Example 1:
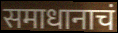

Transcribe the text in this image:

समाधानाचं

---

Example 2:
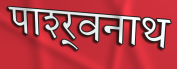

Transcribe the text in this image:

पाश्र्वनाथ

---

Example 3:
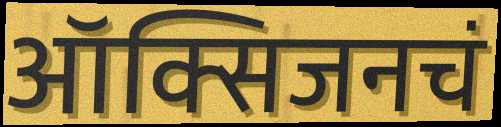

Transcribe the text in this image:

ऑक्सिजनचं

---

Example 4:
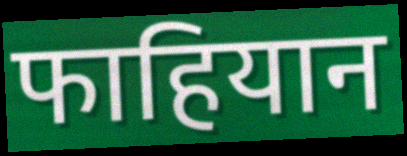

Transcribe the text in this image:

फाहियान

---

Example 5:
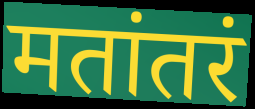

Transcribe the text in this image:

मतांतरं